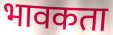
भावकता